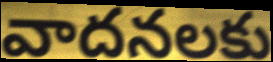
వాదనలకు